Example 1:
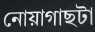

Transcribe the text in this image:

নোয়াগাছটা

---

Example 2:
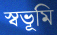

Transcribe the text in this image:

স্বভূমি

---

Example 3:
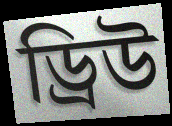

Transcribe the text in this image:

ড্রিউ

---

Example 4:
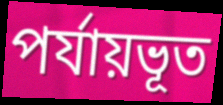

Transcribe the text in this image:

পর্যায়ভূত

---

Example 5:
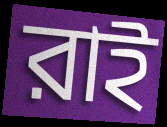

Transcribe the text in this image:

রাই